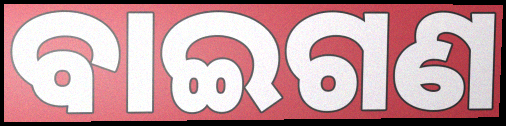
ବାଇଗଣ